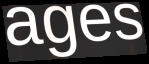
ages